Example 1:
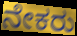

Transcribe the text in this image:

ನೇಕರು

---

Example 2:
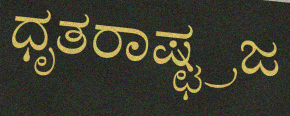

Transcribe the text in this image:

ಧೃತರಾಷ್ಟ್ರಜ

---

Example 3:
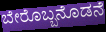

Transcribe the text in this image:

ಬೇರೊಬ್ಬನೊಡನೆ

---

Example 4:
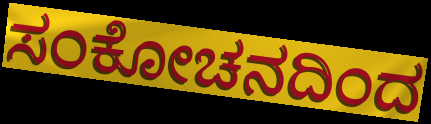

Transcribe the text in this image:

ಸಂಕೋಚನದಿಂದ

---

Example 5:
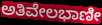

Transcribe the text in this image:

ಅತಿವೇಲಭಾಣೀ